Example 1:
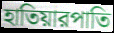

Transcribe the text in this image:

হাতিয়ারপাতি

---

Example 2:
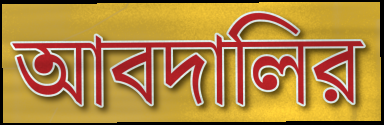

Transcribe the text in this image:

আবদালির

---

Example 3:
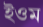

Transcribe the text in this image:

ইওম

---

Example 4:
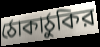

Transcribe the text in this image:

ঠোকাঠুকির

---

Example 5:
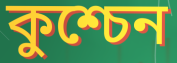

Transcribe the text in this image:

কুশ্চেন